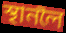
স্থানলৈ